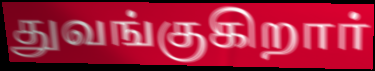
துவங்குகிறார்